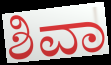
ಶಿವಾ